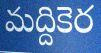
మద్దికెర